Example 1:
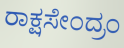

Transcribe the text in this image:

ರಾಕ್ಷಸೇಂದ್ರಂ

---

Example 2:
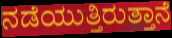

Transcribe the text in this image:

ನಡೆಯುತ್ತಿರುತ್ತಾನೆ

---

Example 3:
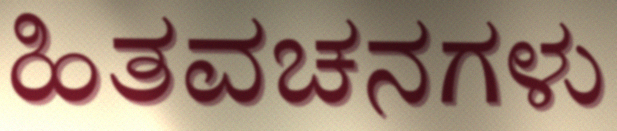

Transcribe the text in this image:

ಹಿತವಚನಗಳು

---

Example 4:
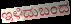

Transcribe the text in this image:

ಇಳಿದುಬಂದ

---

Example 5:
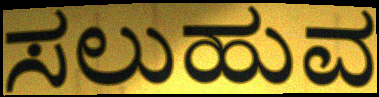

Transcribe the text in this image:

ಸಲುಹುವ